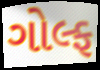
ગોલ્ફ